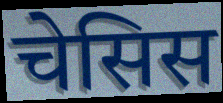
चेसिस